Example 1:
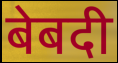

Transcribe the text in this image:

बेबदी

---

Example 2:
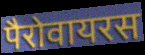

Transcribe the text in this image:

पैरोवायरस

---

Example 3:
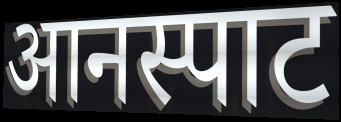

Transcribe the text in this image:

आनस्पाट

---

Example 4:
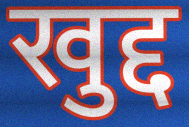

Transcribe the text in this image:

खुद्द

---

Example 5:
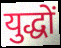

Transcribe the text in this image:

युद्धों